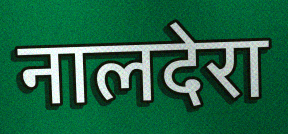
नालदेरा